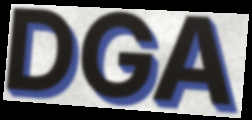
DGA